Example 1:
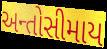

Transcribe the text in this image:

અન્તોસીમાય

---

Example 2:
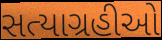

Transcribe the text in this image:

સત્યાગ્રહીઓ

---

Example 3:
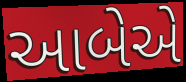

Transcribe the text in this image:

આબેએ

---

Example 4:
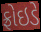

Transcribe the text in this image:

ફ્રોઇડે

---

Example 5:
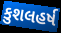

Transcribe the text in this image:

કુશલહર્ષ